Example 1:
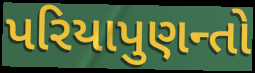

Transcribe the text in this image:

પરિયાપુણન્તો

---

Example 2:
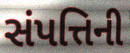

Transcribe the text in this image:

સંપત્તિની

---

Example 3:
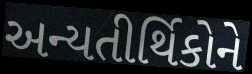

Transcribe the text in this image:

અન્યતીર્થિકોને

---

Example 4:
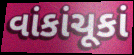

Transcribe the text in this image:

વાંકાંચૂકાં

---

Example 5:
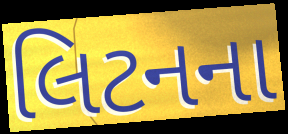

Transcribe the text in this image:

લિટનના